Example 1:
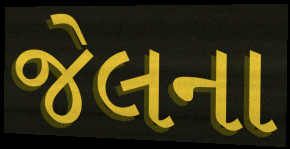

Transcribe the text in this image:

જેલના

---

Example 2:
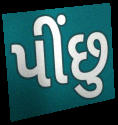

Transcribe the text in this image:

પીંછુ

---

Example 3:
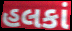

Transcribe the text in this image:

હલકાં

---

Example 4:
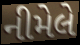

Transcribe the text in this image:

નીમેલે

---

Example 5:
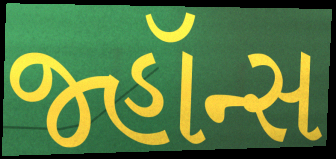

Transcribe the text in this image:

જ્હૉન્સ